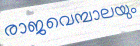
രാജവെമ്പാലയും